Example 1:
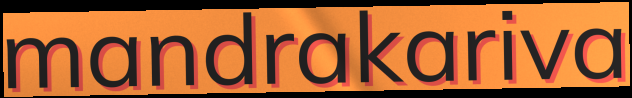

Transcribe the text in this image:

mandrakariva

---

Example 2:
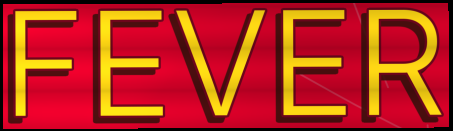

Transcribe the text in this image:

FEVER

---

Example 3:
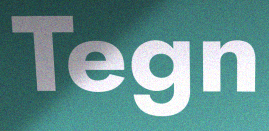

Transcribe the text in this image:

Tegn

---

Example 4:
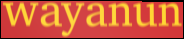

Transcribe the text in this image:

wayanun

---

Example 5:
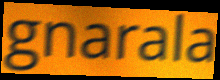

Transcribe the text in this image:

gnarala